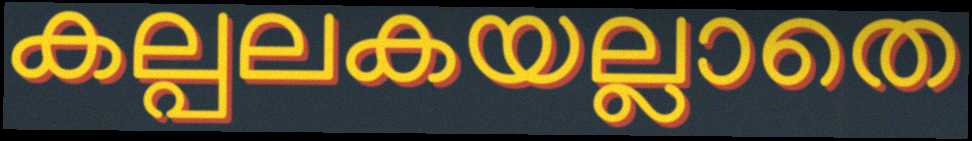
കല്പലകയല്ലാതെ